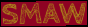
SMAW